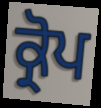
ਕ੍ਰੋਪ